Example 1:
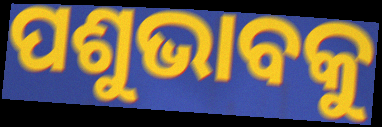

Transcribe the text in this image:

ପଶୁଭାବକୁ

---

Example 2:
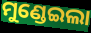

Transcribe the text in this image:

ମୁଣ୍ଡେଇଲା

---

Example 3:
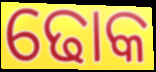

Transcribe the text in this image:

ଢୋକ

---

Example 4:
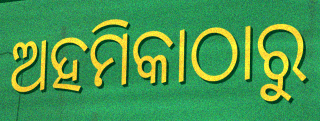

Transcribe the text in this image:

ଅହମିକାଠାରୁ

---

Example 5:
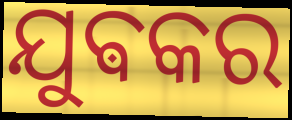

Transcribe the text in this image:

ଯୁଵକର